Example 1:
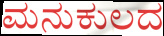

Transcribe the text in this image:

ಮನುಕುಲದ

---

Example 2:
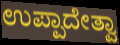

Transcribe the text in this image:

ಉಪ್ಪಾದೇತ್ವಾ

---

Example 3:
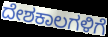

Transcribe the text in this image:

ದೇಶಕಾಲಗಳಿಗೆ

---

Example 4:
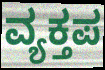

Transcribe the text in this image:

ವ್ಯಕ್ತಪ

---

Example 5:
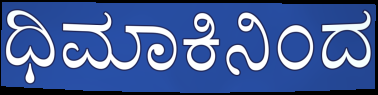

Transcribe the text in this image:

ಧಿಮಾಕಿನಿಂದ